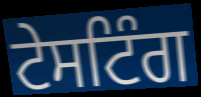
ਟੇਸਟਿੰਗ